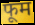
फूम